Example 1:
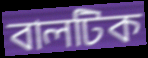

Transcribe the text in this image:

বালটিক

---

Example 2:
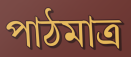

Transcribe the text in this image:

পাঠমাত্র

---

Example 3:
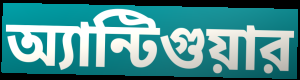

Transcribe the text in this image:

অ্যান্টিগুয়ার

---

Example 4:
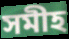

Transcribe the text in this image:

সমীহ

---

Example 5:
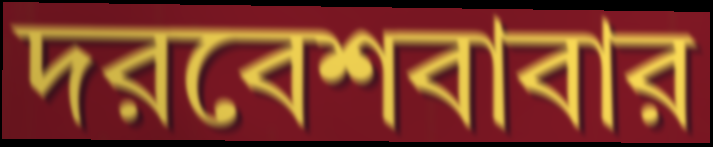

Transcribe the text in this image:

দরবেশবাবার